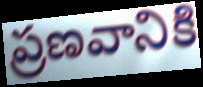
ప్రణవానికి